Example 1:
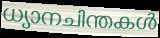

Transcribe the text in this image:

ധ്യാനചിന്തകൾ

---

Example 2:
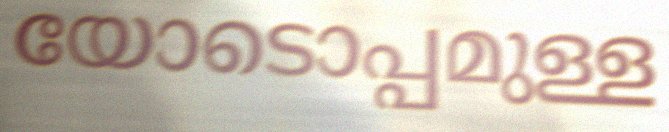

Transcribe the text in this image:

യോടൊപ്പമുള്ള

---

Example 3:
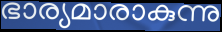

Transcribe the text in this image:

ഭാര്യമാരാകുന്നു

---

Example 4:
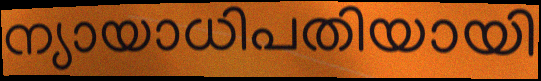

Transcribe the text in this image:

ന്യായാധിപതിയായി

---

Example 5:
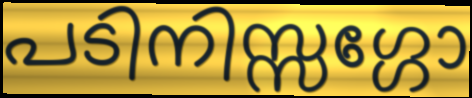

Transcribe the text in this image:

പടിനിസ്സഗ്ഗോ